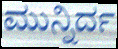
ಮುನ್ನಿರ್ದ